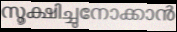
സൂക്ഷിച്ചുനോക്കാൻ